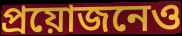
প্রয়োজনেও